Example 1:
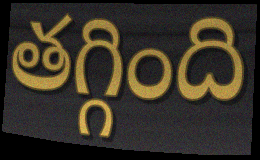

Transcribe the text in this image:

తగ్గింది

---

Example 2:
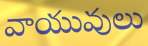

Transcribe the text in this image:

వాయువులు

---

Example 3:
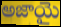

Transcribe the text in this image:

అజాయై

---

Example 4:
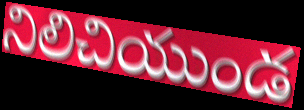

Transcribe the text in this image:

నిలిచియుండ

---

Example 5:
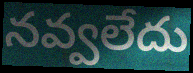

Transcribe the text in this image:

నవ్వలేదు